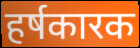
हर्षकारक